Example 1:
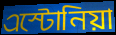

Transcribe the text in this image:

এস্টোনিয়া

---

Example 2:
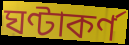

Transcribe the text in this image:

ঘণ্টাকর্ণ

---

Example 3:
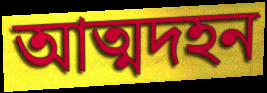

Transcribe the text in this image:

আত্মদহন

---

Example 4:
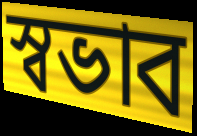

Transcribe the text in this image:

স্বভাব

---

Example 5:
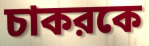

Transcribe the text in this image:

চাকরকে